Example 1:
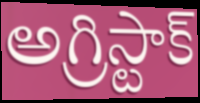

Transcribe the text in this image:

అగ్రిస్టాక్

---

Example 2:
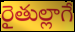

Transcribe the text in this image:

రైతుల్లాగే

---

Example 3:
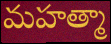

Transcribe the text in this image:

మహత్మా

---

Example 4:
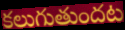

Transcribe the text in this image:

కలుగుతుందట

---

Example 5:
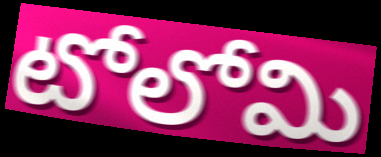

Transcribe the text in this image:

టోలోమి